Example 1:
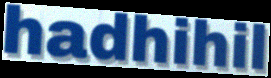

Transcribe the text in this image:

hadhihil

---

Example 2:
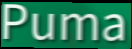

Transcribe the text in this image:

Puma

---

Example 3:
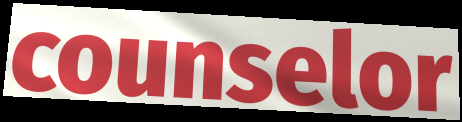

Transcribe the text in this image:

counselor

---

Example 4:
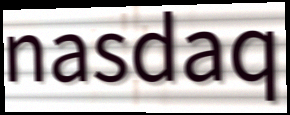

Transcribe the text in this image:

nasdaq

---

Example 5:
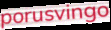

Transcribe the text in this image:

porusvingo